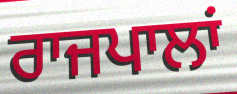
ਰਾਜਪਾਲਾਂ